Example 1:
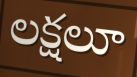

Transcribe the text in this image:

లక్షలూ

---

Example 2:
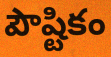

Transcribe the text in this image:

పౌష్టికం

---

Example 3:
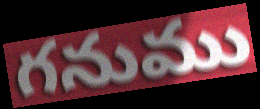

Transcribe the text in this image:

గనుము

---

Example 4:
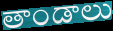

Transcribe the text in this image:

తాండాలు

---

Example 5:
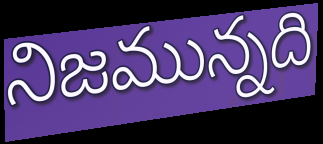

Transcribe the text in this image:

నిజమున్నది